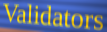
Validators